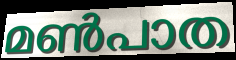
മൺപാത